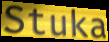
Stuka